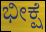
ಭೀಕ್ಷೆ